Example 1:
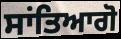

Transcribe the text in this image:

ਸਾਂਤਿਆਗੋ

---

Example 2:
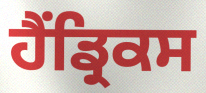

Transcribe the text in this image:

ਹੈਂਡ੍ਰਿਕਸ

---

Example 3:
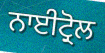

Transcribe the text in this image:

ਨਾਈਟ੍ਰੋਲ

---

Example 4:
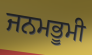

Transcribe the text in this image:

ਜਨਮਭੂਮੀ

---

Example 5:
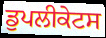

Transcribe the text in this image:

ਡੁਪਲੀਕੇਟਸ